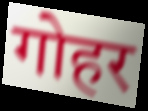
गोहर